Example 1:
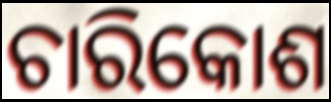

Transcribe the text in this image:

ଚାରିକୋଶ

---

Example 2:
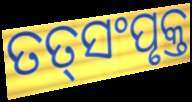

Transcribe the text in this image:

ତତ୍‌ସଂପୃକ୍ତ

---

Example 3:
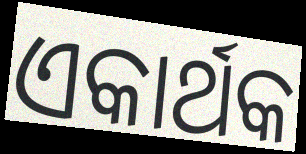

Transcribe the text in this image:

ଏକାର୍ଥକ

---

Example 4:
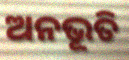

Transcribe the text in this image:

ଅନଭୂତି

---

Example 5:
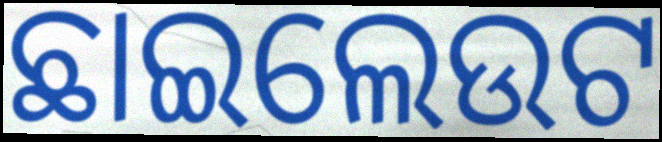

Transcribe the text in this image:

ଛାଇଲେଉଟ